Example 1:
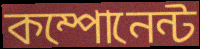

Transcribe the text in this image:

কম্পোনেন্ট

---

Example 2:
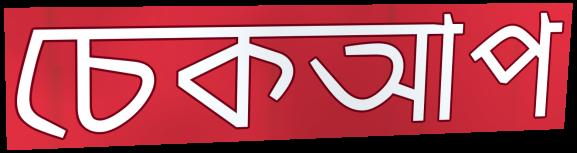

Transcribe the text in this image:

চেকআপ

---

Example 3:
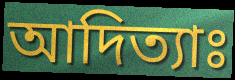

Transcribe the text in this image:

আদিত্যাঃ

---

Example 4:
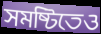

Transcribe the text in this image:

সমষ্টিতেও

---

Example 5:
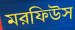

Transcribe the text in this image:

মরফিউস